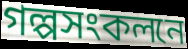
গল্পসংকলনে